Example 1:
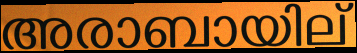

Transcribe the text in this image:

അരാബായില്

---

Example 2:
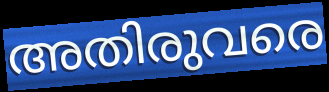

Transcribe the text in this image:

അതിരുവരെ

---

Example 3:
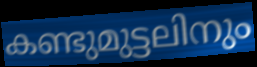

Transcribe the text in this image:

കണ്ടുമുട്ടലിനും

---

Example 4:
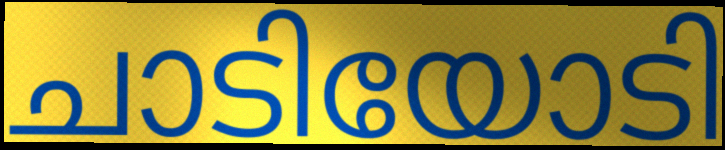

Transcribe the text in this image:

ചാടിയോടി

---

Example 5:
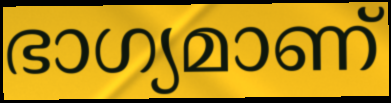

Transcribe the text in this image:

ഭാഗ്യമാണ്